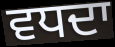
ਵਧਦਾ